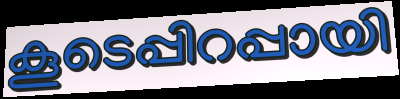
കൂടെപ്പിറപ്പായി